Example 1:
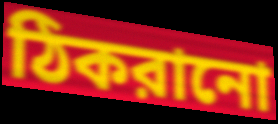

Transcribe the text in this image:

ঠিকরানো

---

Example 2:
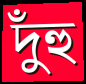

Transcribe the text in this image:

দুঁহু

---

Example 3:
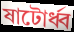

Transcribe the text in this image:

ষাটোর্ধ্ব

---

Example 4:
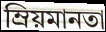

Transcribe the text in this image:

ম্রিয়মানতা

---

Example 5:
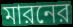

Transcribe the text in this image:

মারনের